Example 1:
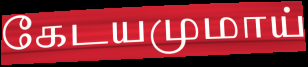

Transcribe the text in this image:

கேடயமுமாய்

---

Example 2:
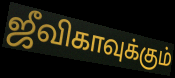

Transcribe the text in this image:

ஜீவிகாவுக்கும்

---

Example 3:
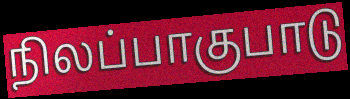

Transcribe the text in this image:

நிலப்பாகுபாடு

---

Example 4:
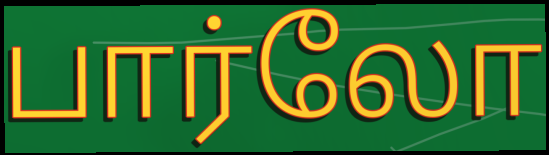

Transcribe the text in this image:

பார்லோ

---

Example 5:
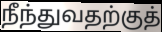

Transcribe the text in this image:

நீந்துவதற்குத்